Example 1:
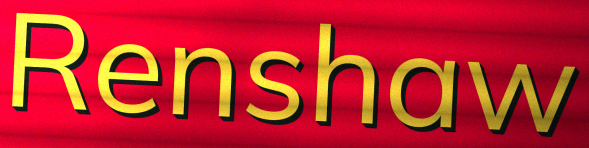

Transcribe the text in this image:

Renshaw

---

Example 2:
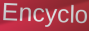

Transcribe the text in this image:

Encyclo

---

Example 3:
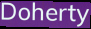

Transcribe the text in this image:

Doherty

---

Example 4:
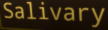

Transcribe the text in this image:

Salivary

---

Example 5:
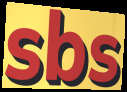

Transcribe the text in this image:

sbs